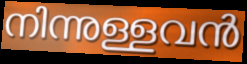
നിന്നുള്ളവൻ